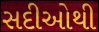
સદીઓથી